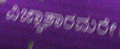
ವಿಜ್ಞಾತಾರಮರೇ